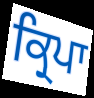
ਕ੍ਰਿਪਾ